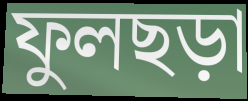
ফুলছড়া